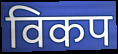
विकप